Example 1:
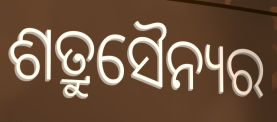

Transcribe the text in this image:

ଶତ୍ରୁସୈନ୍ୟର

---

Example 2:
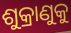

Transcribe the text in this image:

ଶୁକ୍ରାଣୁକୁ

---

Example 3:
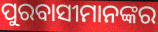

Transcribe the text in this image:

ପୁରବାସୀମାନଙ୍କର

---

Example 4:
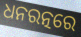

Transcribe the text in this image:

ଧନରତ୍ନରେ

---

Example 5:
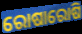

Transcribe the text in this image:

ରୋଷାରୋଷି